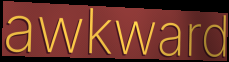
awkward